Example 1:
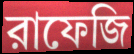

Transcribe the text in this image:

রাফেজি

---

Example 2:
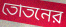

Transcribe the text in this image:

তোতনের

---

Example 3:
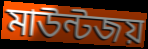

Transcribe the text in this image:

মাউন্টজয়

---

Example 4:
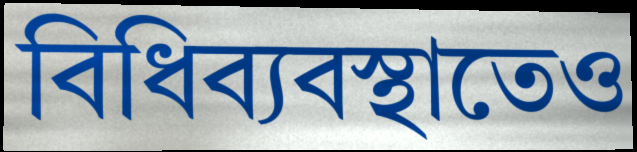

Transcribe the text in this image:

বিধিব্যবস্থাতেও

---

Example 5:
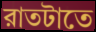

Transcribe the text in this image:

রাতটাতে